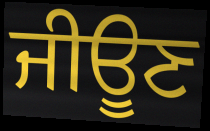
ਜੀਊਣ